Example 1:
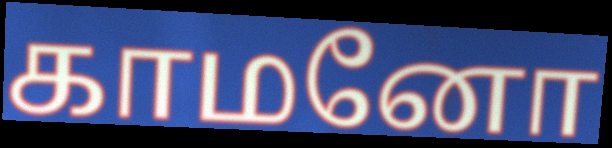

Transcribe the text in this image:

காமனோ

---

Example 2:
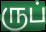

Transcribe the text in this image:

ருப்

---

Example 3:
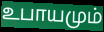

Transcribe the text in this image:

உபாயமும்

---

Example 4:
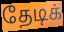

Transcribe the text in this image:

தேடிக்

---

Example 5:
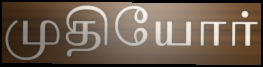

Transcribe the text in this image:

முதியோர்